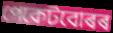
পেকেটবোৰৰ